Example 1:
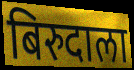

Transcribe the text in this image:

बिरुदाला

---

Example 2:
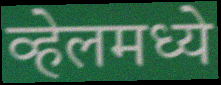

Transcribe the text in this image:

व्हेलमध्ये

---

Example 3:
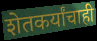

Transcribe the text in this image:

शेतकर्यांचाही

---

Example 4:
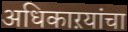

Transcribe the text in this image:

अधिकाऱयांचा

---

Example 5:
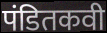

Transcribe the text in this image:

पंडितकवी